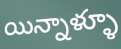
యిన్నాళ్ళూ